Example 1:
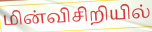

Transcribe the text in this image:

மின்விசிறியில்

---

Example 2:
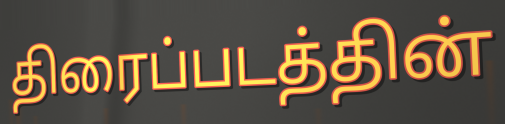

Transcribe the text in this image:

திரைப்படத்தின்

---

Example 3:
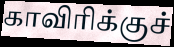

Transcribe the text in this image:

காவிரிக்குச்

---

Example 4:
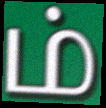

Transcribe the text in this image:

ம்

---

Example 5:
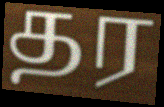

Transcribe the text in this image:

தர